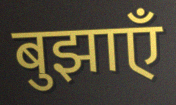
बुझाएँ